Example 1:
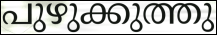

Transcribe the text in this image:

പുഴുക്കുത്തു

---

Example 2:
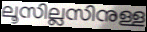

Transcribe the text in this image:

ലൂസില്ലസിനുള്ള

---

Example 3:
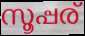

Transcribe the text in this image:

സൂപ്പര്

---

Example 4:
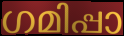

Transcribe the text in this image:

ഗമിപ്പാ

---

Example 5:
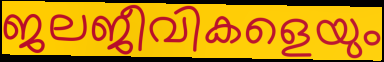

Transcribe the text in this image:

ജലജീവികളെയും